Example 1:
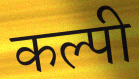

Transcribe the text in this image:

कल्पी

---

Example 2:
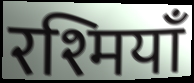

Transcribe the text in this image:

रश्मियाँ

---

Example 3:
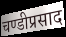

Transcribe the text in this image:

चण्डीप्रसाद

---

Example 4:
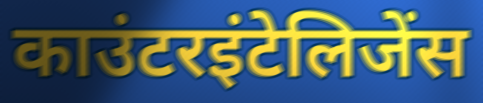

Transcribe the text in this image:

काउंटरइंटेलिजेंस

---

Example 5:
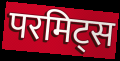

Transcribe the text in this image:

परमिट्स